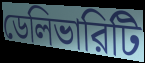
ডেলিভারিটি